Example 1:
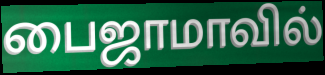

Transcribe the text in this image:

பைஜாமாவில்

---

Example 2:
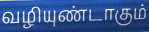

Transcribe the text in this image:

வழியுண்டாகும்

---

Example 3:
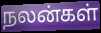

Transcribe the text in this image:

நலன்கள்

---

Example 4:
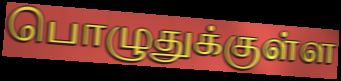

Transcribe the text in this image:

பொழுதுக்குள்ள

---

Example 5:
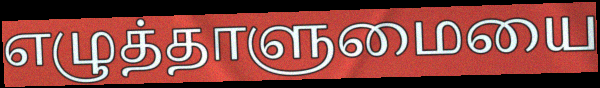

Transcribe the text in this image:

எழுத்தாளுமையை